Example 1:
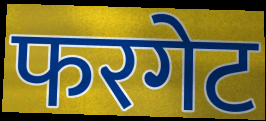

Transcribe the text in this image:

फरगेट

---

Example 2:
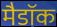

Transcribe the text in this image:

मैडॉक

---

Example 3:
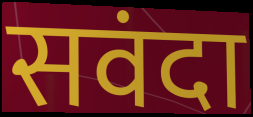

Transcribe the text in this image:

सवंदा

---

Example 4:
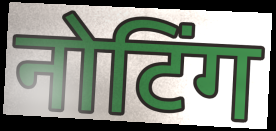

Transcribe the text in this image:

नोटिंग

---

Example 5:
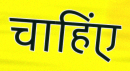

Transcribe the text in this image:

चाहिंए